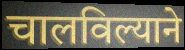
चालविल्याने